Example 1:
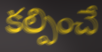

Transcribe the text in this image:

కల్పించే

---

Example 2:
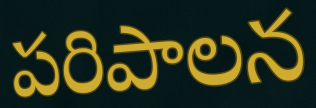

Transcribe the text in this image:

పరిపాలన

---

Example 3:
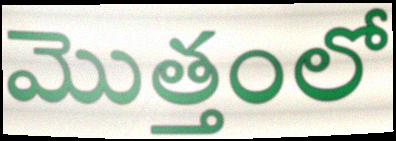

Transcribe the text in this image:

మొత్తంలో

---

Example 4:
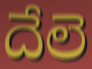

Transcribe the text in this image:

దేలె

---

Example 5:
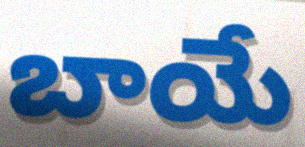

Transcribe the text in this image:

బాయే